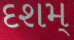
દશમ્